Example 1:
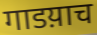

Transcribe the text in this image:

गाडय़ाच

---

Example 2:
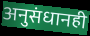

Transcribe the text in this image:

अनुसंधानही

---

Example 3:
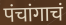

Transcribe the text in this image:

पंचांगाचं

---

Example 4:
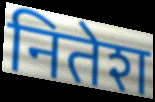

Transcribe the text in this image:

नितेश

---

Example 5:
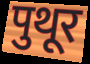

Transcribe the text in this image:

पुथूर